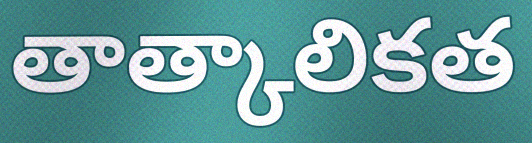
తాత్కాలికత